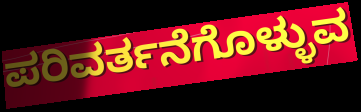
ಪರಿವರ್ತನೆಗೊಳ್ಳುವ